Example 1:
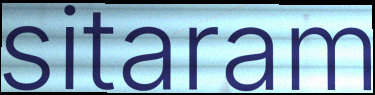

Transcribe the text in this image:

sitaram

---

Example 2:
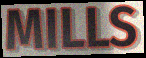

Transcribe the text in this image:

MILLS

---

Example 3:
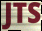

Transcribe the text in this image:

JTS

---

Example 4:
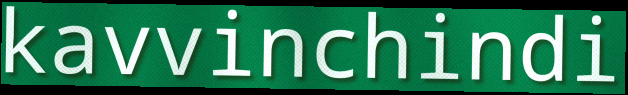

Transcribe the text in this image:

kavvinchindi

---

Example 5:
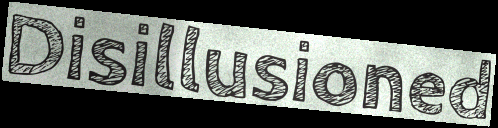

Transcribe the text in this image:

Disillusioned